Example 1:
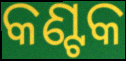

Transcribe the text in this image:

କଣ୍ଟକ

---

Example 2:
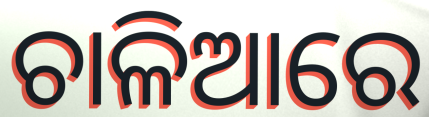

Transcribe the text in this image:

ଚାଳିଆରେ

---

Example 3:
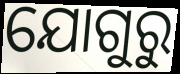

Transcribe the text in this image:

ଯୋଗୁରୁ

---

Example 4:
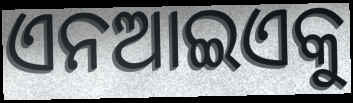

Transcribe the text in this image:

ଏନଆଇଏକୁ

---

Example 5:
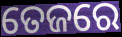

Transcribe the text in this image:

ତେଜରେ